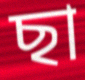
ছা